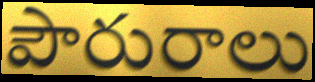
పౌరురాలు